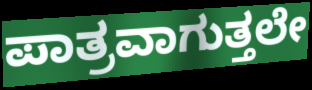
ಪಾತ್ರವಾಗುತ್ತಲೇ